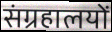
संग्रहालयों